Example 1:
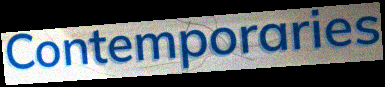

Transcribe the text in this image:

Contemporaries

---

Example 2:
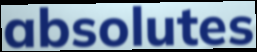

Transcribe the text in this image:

absolutes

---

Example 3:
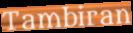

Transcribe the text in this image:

Tambiran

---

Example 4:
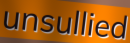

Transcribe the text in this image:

unsullied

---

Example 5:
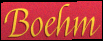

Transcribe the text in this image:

Boehm